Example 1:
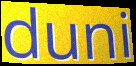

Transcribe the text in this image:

duni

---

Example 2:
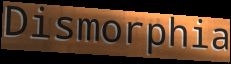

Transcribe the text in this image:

Dismorphia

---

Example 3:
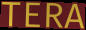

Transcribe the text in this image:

TERA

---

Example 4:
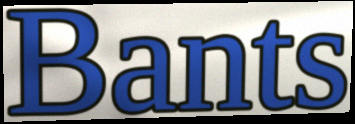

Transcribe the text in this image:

Bants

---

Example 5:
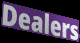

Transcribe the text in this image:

Dealers